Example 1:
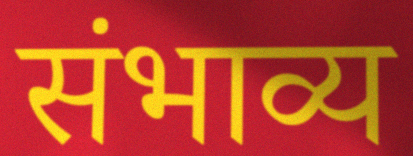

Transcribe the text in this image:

संभाव्य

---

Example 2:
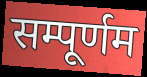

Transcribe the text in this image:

सम्पूर्णम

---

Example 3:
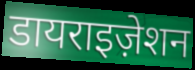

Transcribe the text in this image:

डायराइज़ेशन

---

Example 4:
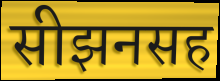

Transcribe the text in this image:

सीझनसह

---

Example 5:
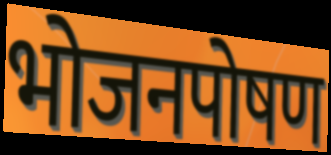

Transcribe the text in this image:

भोजनपोषण